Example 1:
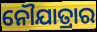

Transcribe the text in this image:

ନୌଯାତ୍ରାର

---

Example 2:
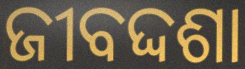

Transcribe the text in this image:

ଜୀବଦ୍ଦଶା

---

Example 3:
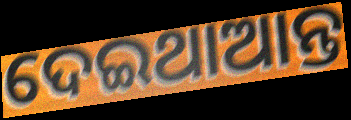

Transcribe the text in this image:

ଦେଇଥାଆନ୍ତ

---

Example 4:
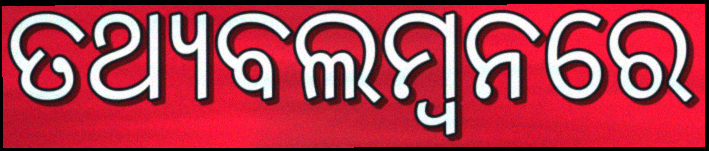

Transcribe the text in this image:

ତଥ୍ୟବଲମ୍ବନରେ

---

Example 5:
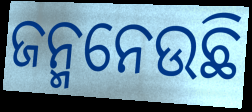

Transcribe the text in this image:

ଜନ୍ମନେଉଛି